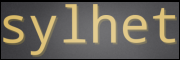
sylhet